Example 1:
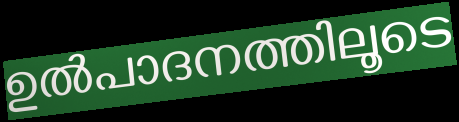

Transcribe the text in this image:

ഉൽപാദനത്തിലൂടെ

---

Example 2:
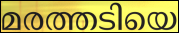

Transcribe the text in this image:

മരത്തടിയെ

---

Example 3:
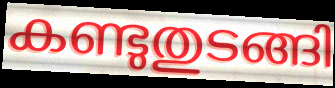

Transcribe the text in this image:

കണ്ടുതുടങ്ങി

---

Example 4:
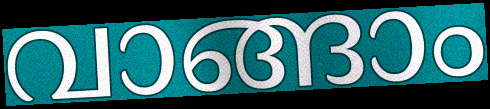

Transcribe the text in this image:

വാങ്ങാം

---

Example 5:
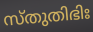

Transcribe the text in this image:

സ്തുതിഭിഃ